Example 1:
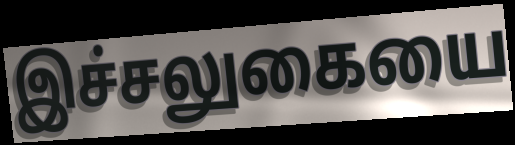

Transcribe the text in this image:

இச்சலுகையை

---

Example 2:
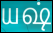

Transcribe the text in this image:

யஷ்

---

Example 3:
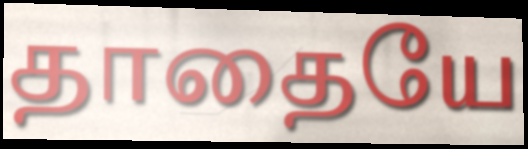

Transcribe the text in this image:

தாதையே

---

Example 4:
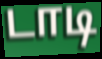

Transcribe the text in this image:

டாடி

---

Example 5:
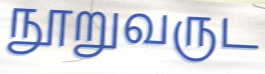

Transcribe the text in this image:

நூறுவருட